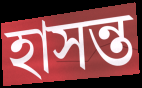
হাসন্ত